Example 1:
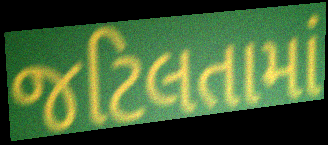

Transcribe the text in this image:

જટિલતામાં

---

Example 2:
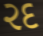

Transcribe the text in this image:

રદ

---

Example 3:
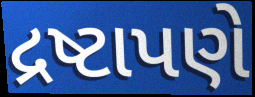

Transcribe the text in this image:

દ્રષ્ટાપણે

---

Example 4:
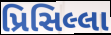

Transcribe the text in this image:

પ્રિસિલ્લા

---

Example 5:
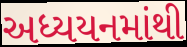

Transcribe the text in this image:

અધ્યયનમાંથી